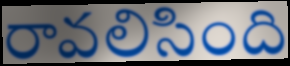
రావలిసింది